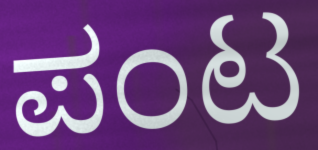
ಪಂಟ